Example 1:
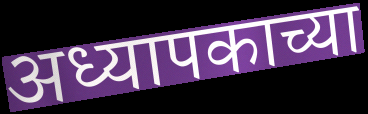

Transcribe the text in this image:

अध्यापकाच्या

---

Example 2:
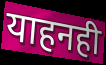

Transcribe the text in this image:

याहनही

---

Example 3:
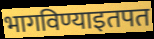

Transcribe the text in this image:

भागविण्याइतपत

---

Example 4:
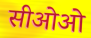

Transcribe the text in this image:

सीओओ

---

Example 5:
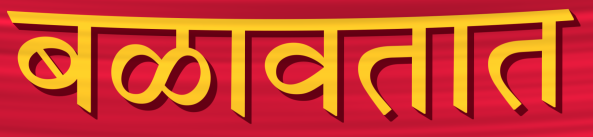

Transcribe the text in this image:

बळावतात